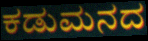
ಕಡುಮನದ